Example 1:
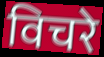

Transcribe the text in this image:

विचरे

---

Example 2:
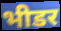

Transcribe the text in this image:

भीडर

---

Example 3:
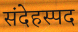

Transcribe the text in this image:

संदेहस्पद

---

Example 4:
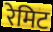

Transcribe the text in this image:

रेमिट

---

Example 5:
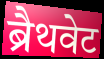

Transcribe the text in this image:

ब्रैथवेट